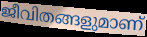
ജീവിതങ്ങളുമാണ്